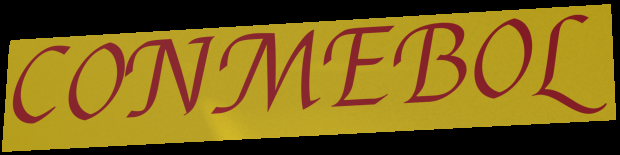
CONMEBOL